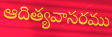
ఆదిత్యవాసరము